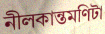
নীলকান্তমণিটা